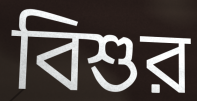
বিশুর